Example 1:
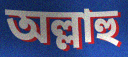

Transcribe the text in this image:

অল্লাহু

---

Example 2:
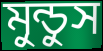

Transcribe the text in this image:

মুন্ডুস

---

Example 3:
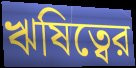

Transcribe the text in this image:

ঋষিত্বের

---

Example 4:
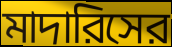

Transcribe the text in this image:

মাদারিসের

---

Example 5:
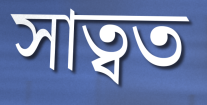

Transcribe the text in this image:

সাত্বত